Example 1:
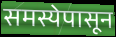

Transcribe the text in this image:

समस्येपासून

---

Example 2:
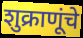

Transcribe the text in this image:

शुक्राणूंचे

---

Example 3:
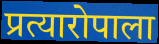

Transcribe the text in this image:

प्रत्यारोपाला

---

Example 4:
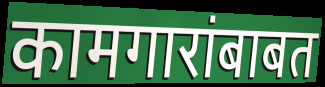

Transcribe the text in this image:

कामगारांबाबत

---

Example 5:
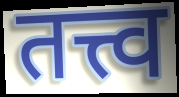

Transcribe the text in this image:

तत्त्व